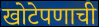
खोटेपणाची